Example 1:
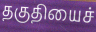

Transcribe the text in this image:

தகுதியைச்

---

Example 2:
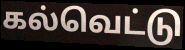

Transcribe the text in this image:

கல்வெட்டு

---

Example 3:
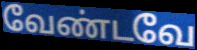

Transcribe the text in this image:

வேண்டவே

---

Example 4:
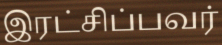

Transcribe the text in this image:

இரட்சிப்பவர்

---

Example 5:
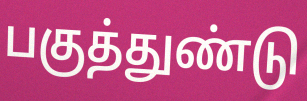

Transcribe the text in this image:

பகுத்துண்டு